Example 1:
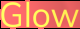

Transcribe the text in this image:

Glow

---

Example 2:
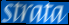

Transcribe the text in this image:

strata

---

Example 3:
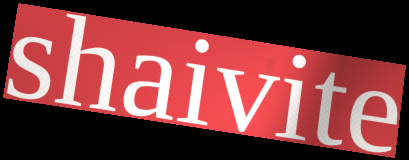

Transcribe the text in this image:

shaivite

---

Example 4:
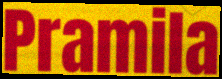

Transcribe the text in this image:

Pramila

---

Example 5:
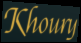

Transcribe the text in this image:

Khoury